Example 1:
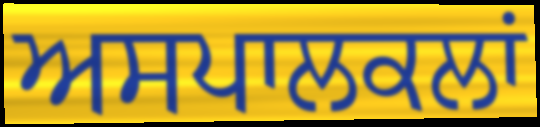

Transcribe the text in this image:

ਅਸਪਾਲਕਲਾਂ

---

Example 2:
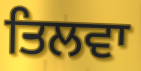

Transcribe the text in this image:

ਤਿਲਵਾ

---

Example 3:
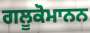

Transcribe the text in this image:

ਗਲੂਕੋਮਾਨਨ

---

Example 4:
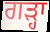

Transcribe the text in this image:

ਗੜ੍ਹਾ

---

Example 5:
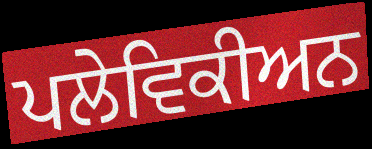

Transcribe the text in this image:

ਪਲੇਵਿਕੀਅਨ